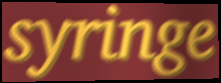
syringe